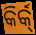
କିର୍କ୍